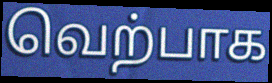
வெற்பாக